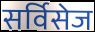
सर्विसेज